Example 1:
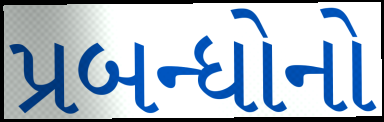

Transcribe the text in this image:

પ્રબન્ધોનો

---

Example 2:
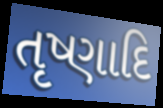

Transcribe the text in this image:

તૃષ્ણાદિ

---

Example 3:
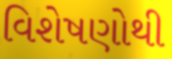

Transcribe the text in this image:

વિશેષણોથી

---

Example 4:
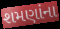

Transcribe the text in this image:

શમણાંના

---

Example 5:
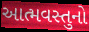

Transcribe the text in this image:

આત્મવસ્તુનો